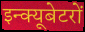
इन्क्यूबेटरों